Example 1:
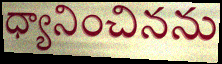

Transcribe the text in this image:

ధ్యానించినను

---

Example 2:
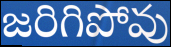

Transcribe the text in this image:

జరిగిపోవు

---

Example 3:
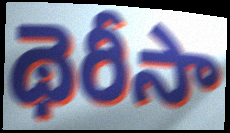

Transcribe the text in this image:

థెరీసా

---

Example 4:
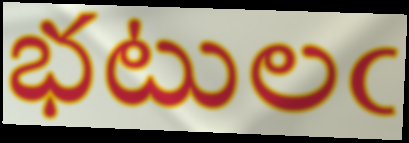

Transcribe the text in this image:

భటులఁ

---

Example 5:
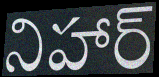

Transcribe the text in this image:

నిహార్